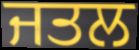
ਜਤਲ